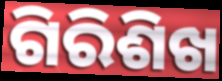
ଗିରିଶିଖ